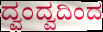
ದ್ವಂದ್ವದಿಂದ